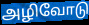
அழிவோடு